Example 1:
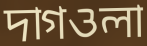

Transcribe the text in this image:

দাগওলা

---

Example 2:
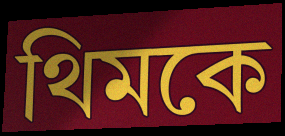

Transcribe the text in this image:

থিমকে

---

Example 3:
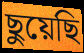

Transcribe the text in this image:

ছুয়েছি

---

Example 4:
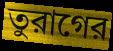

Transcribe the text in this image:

তুরাগের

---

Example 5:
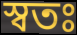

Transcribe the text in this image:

স্বতঃ